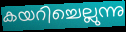
കയറിച്ചെല്ലുന്നു